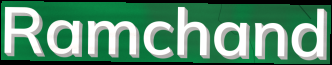
Ramchand